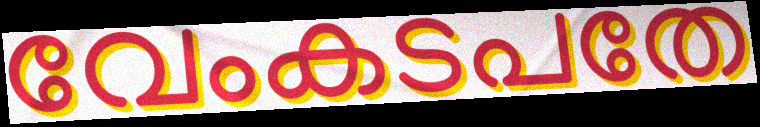
വേംകടപതേ